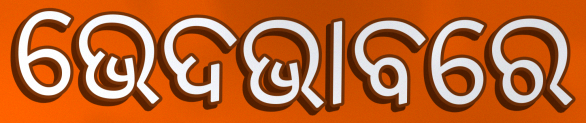
ଭେଦଭାବରେ